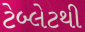
ટેબ્લેટથી